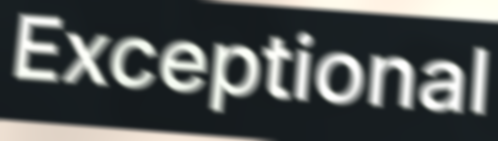
Exceptional